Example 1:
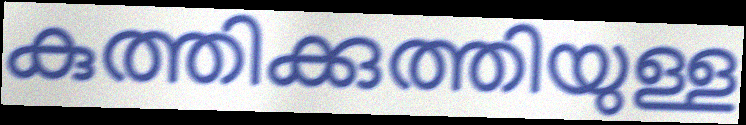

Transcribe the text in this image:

കുത്തിക്കുത്തിയുള്ള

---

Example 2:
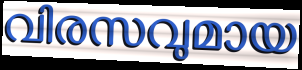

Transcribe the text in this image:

വിരസവുമായ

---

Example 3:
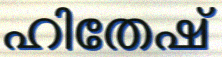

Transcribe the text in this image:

ഹിതേഷ്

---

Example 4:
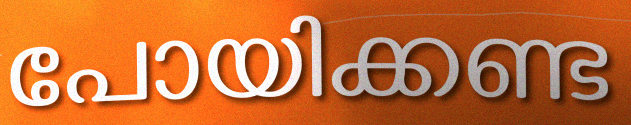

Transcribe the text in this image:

പോയിക്കണ്ട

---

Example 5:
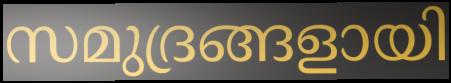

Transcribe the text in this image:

സമുദ്രങ്ങളായി